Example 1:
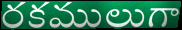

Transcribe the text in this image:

రకములుగా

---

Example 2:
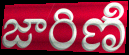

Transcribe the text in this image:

జారిణి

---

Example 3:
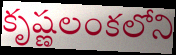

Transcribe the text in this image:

కృష్ణలంకలోని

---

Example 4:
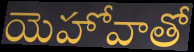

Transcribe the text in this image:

యెహోవాతో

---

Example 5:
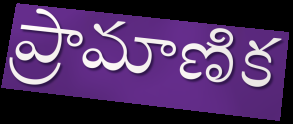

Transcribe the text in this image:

ప్రామాణిక